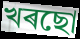
খৰছো